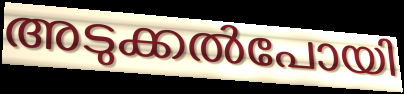
അടുക്കൽപോയി